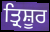
ਤ੍ਰਿਸ਼ੂਰ